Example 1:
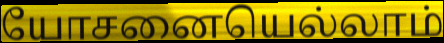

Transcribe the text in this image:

யோசனையெல்லாம்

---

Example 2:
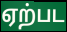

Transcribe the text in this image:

ஏற்பட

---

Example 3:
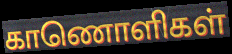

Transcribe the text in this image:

காணொளிகள்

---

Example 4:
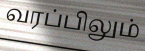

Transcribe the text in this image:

வரப்பிலும்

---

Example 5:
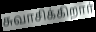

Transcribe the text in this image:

சுவாசிக்கிறார்